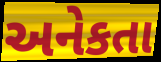
અનેકતા